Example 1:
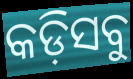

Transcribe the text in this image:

କଡ଼ିସବୁ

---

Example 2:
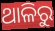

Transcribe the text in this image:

ଥାଳିରୁ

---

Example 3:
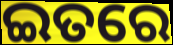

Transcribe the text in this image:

ଇତରେ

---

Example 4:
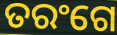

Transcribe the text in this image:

ତରଂଗେ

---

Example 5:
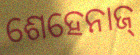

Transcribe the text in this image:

ଶେହେନାଜ୍